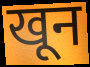
खून